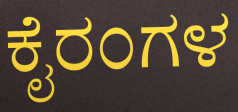
ಕೈರಂಗಳ